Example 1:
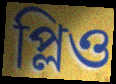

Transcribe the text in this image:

প্লিও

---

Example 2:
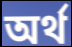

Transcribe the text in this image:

অর্থ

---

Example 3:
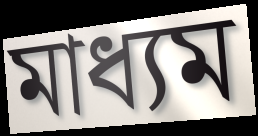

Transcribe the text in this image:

মাধ্যম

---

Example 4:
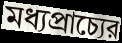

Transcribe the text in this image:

মধ্যপ্রাচ্যের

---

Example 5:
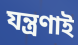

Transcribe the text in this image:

যন্ত্রণাই